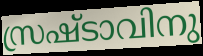
സ്രഷ്ടാവിനു